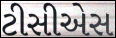
ટીસીએસ